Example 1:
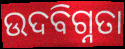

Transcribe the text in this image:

ଉଦବିଗ୍ନତା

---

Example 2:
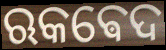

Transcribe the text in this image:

ଋକଵେଦ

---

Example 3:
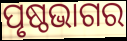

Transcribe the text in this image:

ପୃଷ୍ଠଭାଗର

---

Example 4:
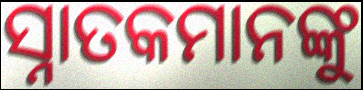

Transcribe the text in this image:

ସ୍ନାତକମାନଙ୍କୁ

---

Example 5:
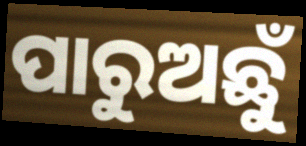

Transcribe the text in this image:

ପାରୁଅଛୁଁ